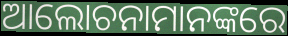
ଆଲୋଚନାମାନଙ୍କରେ